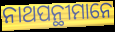
ନାଥପନ୍ଥୀମାନେ